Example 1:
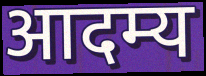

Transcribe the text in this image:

आदम्य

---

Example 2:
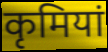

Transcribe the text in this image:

कृमियां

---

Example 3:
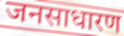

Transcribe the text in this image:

जनसाधारण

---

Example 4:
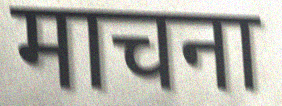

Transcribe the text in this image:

माचना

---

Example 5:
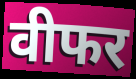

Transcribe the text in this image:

वीफर